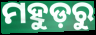
ମହୁଡ଼ରୁ